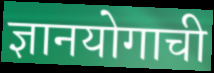
ज्ञानयोगाची